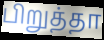
பிறுத்தா